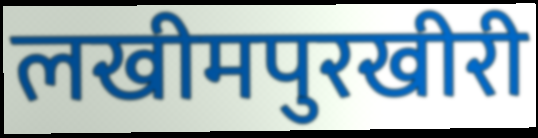
लखीमपुरखीरी